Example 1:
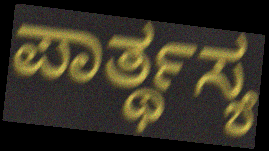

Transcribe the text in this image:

ಪಾರ್ತ್ಥಸ್ಯ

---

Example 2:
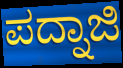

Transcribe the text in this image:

ಪದ್ನಾಜಿ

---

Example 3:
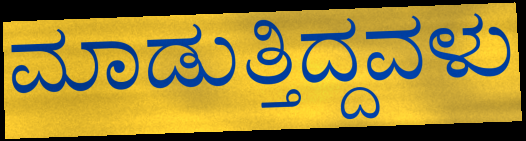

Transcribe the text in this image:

ಮಾಡುತ್ತಿದ್ದವಳು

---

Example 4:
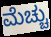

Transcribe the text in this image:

ಮೆಚ್ಚು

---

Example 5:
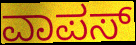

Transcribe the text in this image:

ವಾಪಸ್